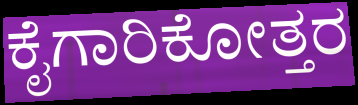
ಕೈಗಾರಿಕೋತ್ತರ